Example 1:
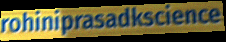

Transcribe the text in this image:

rohiniprasadkscience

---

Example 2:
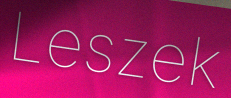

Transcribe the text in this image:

Leszek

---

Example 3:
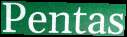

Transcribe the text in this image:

Pentas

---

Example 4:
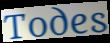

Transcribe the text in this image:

Todes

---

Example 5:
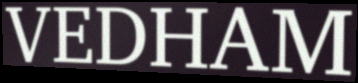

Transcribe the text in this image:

VEDHAM